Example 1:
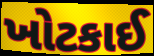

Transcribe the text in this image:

ખોટકાઈ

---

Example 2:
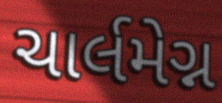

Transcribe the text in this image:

ચાર્લમેગ્ન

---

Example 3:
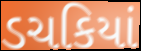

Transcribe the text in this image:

ડચકિયાં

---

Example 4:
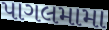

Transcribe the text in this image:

પાગલમામા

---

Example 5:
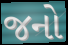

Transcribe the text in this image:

જનો